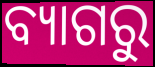
ବ୍ୟାଗରୁ